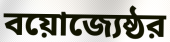
বয়োজ্যেষ্ঠর